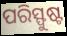
ପରିସ୍ଫୁଷ୍ଟ